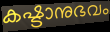
കഷ്ടാനുഭവം